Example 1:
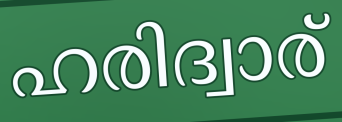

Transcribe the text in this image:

ഹരിദ്വാര്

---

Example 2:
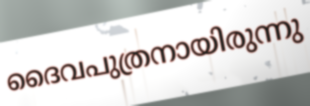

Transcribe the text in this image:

ദൈവപുത്രനായിരുന്നു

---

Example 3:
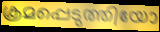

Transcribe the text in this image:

ക്രമപ്പെടുത്തിയോ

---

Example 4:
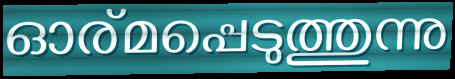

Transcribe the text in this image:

ഓര്മപ്പെടുത്തുന്നു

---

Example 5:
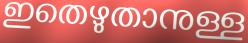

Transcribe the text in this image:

ഇതെഴുതാനുള്ള